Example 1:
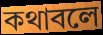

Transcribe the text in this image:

কথাবলে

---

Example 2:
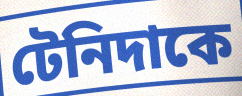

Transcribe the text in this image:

টেনিদাকে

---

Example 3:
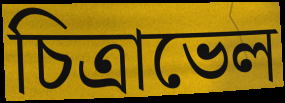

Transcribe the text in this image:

চিত্রাভেল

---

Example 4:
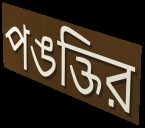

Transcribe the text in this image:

পঙক্তির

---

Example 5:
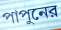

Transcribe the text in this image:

পাপুনের